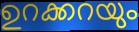
ഉറക്കറയും